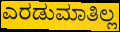
ಎರಡುಮಾತಿಲ್ಲ